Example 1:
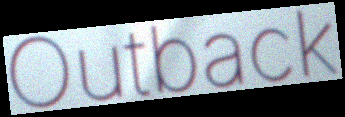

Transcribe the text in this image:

Outback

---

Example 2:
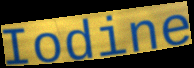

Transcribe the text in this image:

Iodine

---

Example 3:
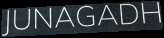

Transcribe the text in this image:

JUNAGADH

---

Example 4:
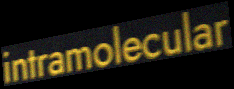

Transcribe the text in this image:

intramolecular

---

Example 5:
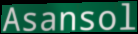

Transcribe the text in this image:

Asansol